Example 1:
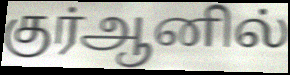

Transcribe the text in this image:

குர்ஆனில்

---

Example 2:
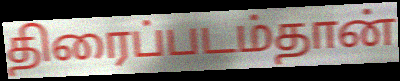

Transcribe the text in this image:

திரைப்படம்தான்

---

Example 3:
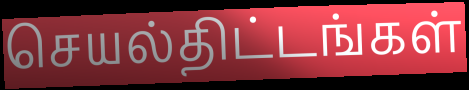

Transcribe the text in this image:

செயல்திட்டங்கள்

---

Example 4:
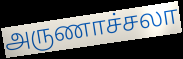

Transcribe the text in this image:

அருணாச்சலா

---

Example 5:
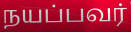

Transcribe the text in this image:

நயப்பவர்